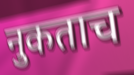
नुकताच